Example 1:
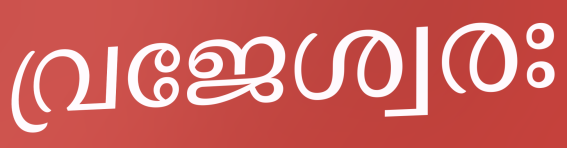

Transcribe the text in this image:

വ്രജേശ്വരഃ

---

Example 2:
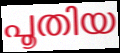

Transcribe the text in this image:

പൂതിയ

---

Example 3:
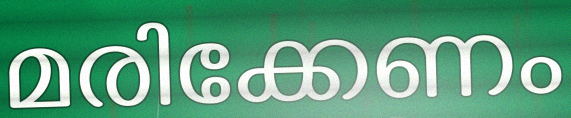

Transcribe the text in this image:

മരിക്കേണം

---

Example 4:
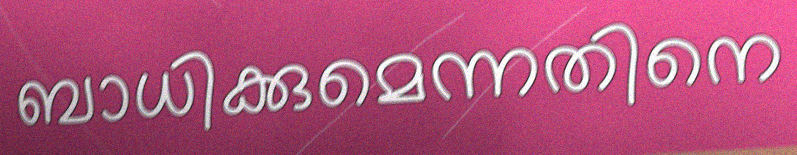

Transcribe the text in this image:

ബാധിക്കുമെന്നതിനെ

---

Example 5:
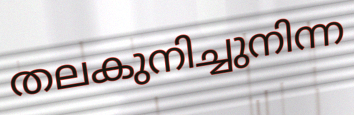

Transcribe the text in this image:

തലകുനിച്ചുനിന്ന